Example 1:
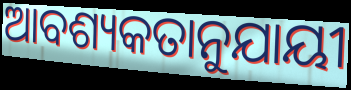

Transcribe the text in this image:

ଆବଶ୍ୟକତାନୁଯାୟୀ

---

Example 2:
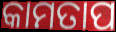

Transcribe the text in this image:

କାମତାପ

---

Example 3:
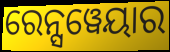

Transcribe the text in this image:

ରେନ୍ସୱେୟାର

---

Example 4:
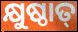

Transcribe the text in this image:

କ୍ଷୁଷ୍ଠାତ୍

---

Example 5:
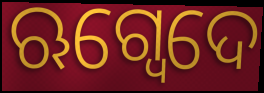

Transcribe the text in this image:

ଋଗ୍ଵେଦେ